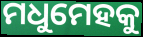
ମଧୁମେହକୁ